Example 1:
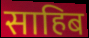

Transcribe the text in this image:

साहिब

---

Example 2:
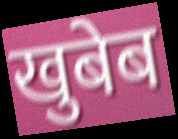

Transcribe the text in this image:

खुबेब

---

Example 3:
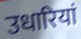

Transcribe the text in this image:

उधारियां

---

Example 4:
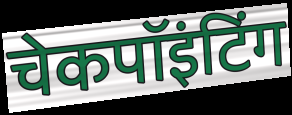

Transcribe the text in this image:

चेकपॉइंटिंग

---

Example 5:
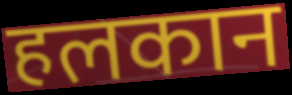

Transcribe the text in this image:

हलकान